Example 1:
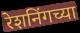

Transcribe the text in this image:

रेशनिंगच्या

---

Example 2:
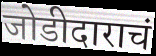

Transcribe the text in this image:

जोडीदाराचं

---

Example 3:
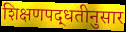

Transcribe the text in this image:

शिक्षणपद्धतीनुसार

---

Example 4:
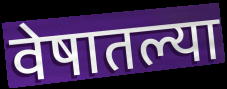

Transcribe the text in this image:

वेषातल्या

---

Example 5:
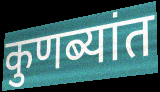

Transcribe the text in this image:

कुणब्यांत